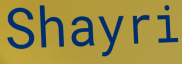
Shayri